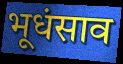
भूधंसाव